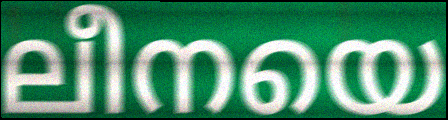
ലീനയെ